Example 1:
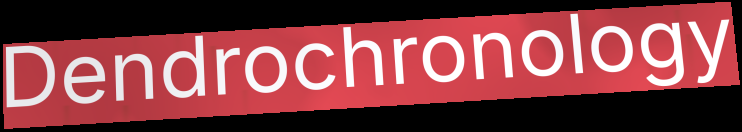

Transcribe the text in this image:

Dendrochronology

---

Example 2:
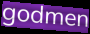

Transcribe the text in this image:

godmen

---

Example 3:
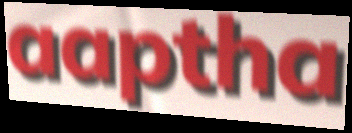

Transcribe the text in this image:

aaptha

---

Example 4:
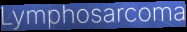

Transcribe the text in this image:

Lymphosarcoma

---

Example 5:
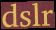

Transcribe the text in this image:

dslr